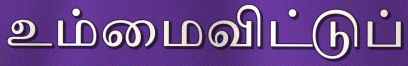
உம்மைவிட்டுப்